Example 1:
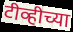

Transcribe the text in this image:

टीव्हीच्या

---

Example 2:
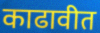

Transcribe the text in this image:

काढावीत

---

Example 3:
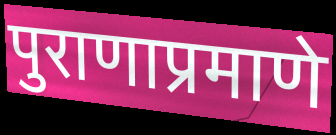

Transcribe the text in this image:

पुराणाप्रमाणे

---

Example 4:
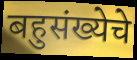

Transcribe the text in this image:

बहुसंख्येचे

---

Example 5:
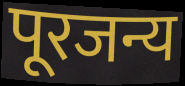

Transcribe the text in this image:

पूरजन्य